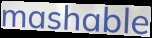
mashable